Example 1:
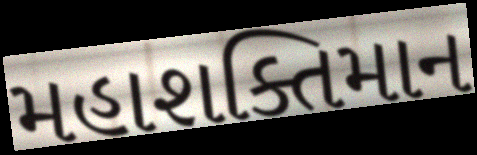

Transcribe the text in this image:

મહાશક્તિમાન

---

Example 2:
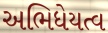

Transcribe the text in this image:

અભિધેયત્વ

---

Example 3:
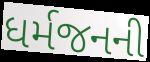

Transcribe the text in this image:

ધર્મજનની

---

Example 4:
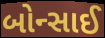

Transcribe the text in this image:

બોન્સાઈ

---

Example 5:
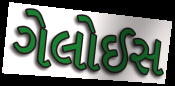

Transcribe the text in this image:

ગેલોઈસ